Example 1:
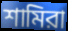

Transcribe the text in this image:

শামিরা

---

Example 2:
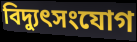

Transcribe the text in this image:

বিদ্যুৎসংযোগ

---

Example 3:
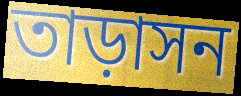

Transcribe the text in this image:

তাড়াসন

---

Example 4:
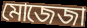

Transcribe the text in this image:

মোজেজা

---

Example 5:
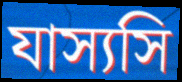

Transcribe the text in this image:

যাস্যসি